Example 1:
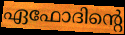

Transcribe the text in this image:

ഏഫോദിന്റെ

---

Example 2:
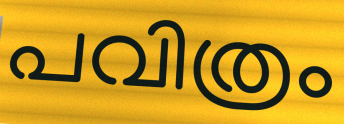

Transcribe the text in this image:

പവിത്രം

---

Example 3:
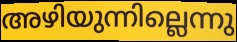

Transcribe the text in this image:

അഴിയുന്നില്ലെന്നു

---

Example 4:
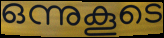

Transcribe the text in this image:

ഒന്നുകൂടെ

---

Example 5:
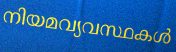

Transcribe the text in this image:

നിയമവ്യവസ്ഥകൾ